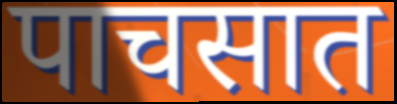
पाचसात